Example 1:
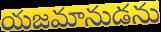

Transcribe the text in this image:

యజమానుడను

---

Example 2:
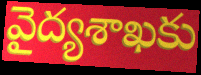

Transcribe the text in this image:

వైద్యశాఖకు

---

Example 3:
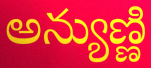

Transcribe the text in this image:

అన్యుణ్ణి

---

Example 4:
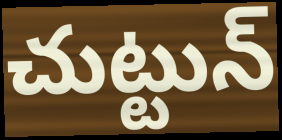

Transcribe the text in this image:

చుట్టున్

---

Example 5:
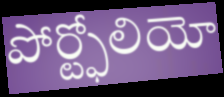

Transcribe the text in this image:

పోర్ట్ఫోలియో